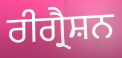
ਰੀਗ੍ਰੈਸ਼ਨ